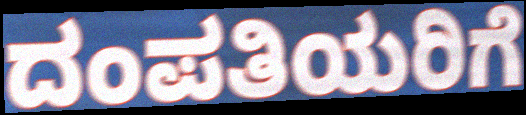
ದಂಪತಿಯರಿಗೆ